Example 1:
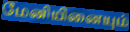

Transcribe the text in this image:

மேனியினையும்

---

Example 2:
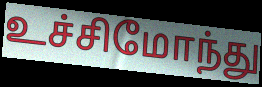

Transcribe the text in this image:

உச்சிமோந்து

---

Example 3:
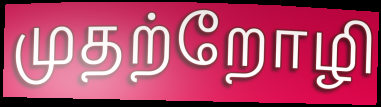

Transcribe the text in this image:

முதற்றோழி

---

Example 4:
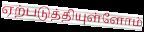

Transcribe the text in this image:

ஏற்படுத்தியுள்ளோம்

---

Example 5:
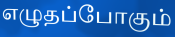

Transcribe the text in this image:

எழுதப்போகும்